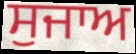
ਸੁਜਾਅ